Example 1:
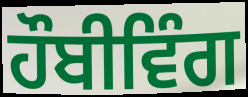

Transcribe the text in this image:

ਹੌਬੀਵਿੰਗ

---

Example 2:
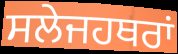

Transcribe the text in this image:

ਸਲੇਜਹਥਰਾਂ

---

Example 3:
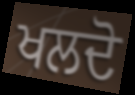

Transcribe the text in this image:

ਖਲਦੋ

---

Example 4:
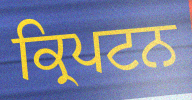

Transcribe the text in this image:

ਕ੍ਰਿਪਟਨ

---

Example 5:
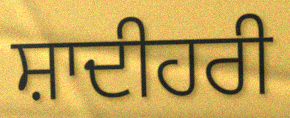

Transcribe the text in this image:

ਸ਼ਾਦੀਹਰੀ